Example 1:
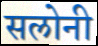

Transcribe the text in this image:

सलोनी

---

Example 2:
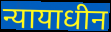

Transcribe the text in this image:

न्यायाधीन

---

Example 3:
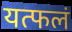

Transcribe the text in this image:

यत्फलं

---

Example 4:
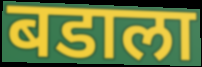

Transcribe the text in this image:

बडाला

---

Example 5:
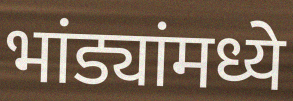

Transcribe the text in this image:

भांड्यांमध्ये